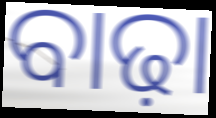
ବାଢ଼ା